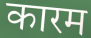
कारम